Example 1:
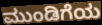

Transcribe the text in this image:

ಮುಂಡಿಗೆಯ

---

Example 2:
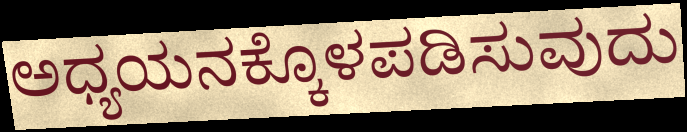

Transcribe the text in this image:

ಅಧ್ಯಯನಕ್ಕೊಳಪಡಿಸುವುದು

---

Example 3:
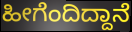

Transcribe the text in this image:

ಹೀಗೆಂದಿದ್ದಾನೆ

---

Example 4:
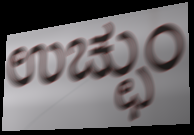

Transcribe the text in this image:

ಉಚ್ಛುಂ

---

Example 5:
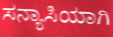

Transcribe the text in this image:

ಸನ್ಯಾಸಿಯಾಗಿ